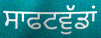
ਸਾਫਟਵੁੱਡਾਂ